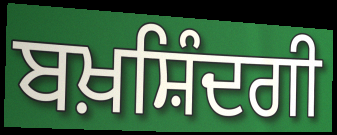
ਬਖ਼ਸ਼ਿੰਦਗੀ